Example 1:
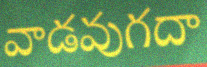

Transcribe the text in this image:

వాడవుగదా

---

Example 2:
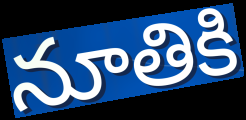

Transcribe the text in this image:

నూతికి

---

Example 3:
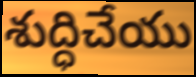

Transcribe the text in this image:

శుద్ధిచేయు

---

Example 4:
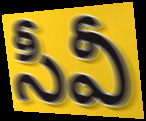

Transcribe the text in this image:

సీవీ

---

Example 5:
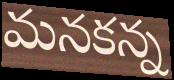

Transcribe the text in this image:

మనకన్న